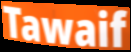
Tawaif